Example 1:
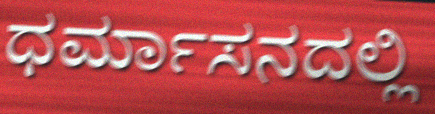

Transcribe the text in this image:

ಧರ್ಮಾಸನದಲ್ಲಿ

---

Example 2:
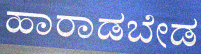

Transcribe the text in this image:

ಹಾರಾಡಬೇಡ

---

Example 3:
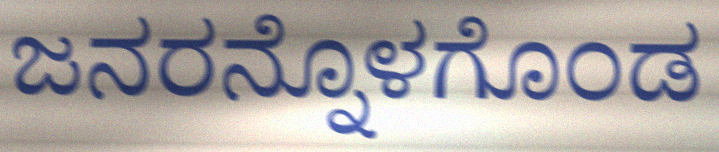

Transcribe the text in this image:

ಜನರನ್ನೊಳಗೊಂಡ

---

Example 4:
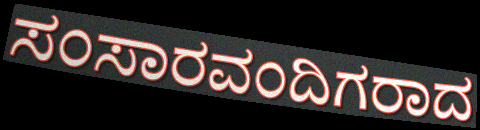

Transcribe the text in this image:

ಸಂಸಾರವಂದಿಗರಾದ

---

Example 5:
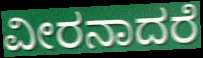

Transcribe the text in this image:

ವೀರನಾದರೆ